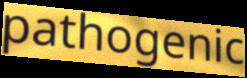
pathogenic